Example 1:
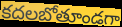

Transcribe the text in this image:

కదలబోతూండగా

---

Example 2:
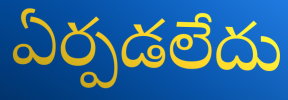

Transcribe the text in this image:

ఏర్పడలేదు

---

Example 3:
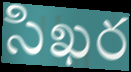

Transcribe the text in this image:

సిఖర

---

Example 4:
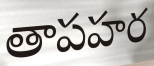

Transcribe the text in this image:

తాపహర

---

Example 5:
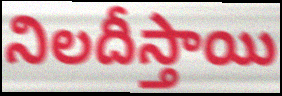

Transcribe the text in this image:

నిలదీస్తాయి